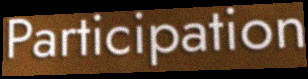
Participation